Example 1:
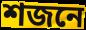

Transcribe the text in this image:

শজনে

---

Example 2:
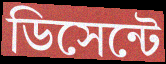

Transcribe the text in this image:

ডিসেন্টে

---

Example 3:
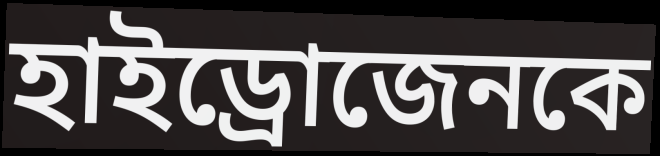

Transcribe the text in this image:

হাইড্রোজেনকে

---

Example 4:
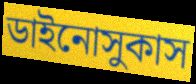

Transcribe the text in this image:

ডাইনোসুকাস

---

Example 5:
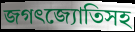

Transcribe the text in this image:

জগৎজ্যোতিসহ